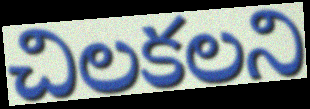
చిలకలని